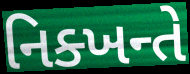
નિક્ખન્તે